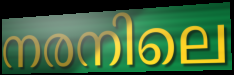
നരനിലെ